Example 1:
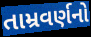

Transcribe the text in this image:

તામ્રવર્ણનો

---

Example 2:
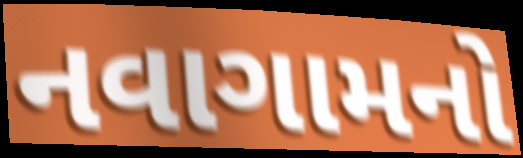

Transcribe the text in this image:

નવાગામનો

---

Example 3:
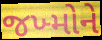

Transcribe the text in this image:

જખ્મોને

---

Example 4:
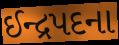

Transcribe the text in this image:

ઈન્દ્રપદના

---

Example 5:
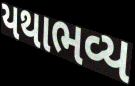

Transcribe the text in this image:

યથાભવ્ય